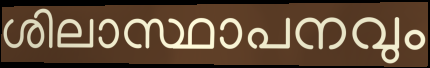
ശിലാസ്ഥാപനവും